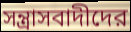
সন্ত্রাসবাদীদের